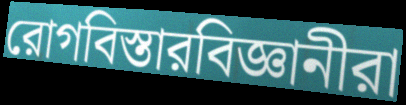
রোগবিস্তারবিজ্ঞানীরা